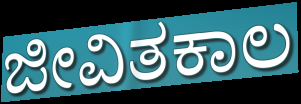
ಜೀವಿತಕಾಲ